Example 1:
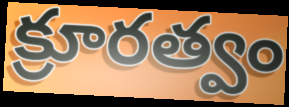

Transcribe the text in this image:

క్రూరత్వం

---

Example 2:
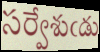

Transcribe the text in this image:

సర్వేశుఁడు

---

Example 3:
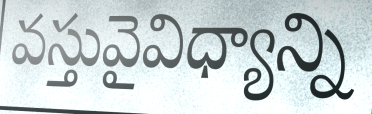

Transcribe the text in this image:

వస్తువైవిధ్యాన్ని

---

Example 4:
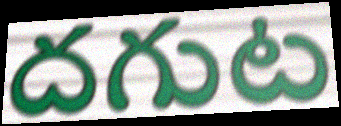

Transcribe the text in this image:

దగుట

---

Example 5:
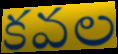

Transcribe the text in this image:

కవల